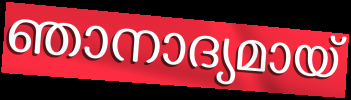
ഞാനാദ്യമായ്